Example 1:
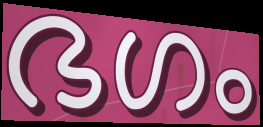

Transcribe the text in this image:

ഭഗം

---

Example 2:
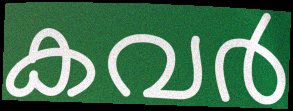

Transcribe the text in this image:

കവർ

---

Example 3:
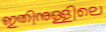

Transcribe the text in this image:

ഇതിനുള്ളിലെ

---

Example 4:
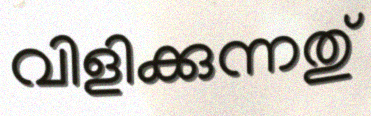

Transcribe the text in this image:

വിളിക്കുന്നതു്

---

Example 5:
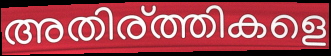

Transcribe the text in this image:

അതിര്ത്തികളെ